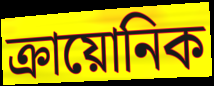
ক্রায়োনিক